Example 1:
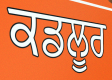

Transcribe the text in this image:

ਕਡਲੂਰ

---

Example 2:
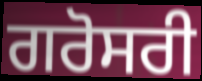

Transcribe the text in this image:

ਗਰੋਸਰੀ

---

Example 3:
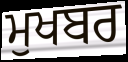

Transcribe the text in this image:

ਮੁਖਬਰ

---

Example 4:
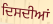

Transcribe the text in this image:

ਦਿਸਦੀਆਂ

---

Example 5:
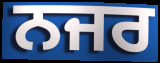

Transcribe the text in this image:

ਨਜਰ